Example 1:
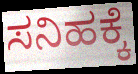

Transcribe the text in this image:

ಸನಿಹಕ್ಕೆ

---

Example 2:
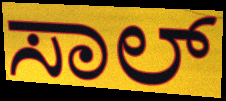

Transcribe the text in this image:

ಸಾಲ್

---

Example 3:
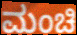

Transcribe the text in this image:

ಮಂಚಿ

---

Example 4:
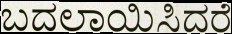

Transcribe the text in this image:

ಬದಲಾಯಿಸಿದರೆ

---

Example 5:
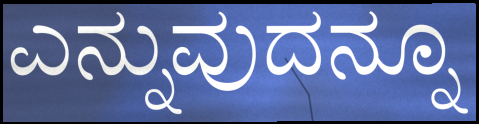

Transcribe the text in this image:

ಎನ್ನುವುದನ್ನೂ